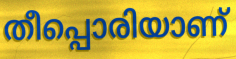
തീപ്പൊരിയാണ്